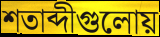
শতাব্দীগুলোয়